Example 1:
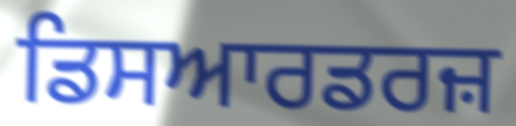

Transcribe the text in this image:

ਡਿਸਆਰਡਰਜ਼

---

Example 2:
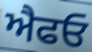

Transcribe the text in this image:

ਐਫਓ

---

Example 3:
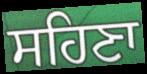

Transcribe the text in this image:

ਸਹਿਣਾ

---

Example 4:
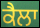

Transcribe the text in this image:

ਕੈਲਾ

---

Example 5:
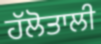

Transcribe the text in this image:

ਹੱਲੋਤਾਲੀ